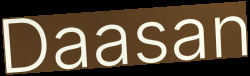
Daasan